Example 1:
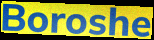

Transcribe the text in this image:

Boroshe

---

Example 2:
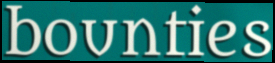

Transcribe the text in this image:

bounties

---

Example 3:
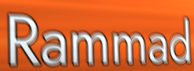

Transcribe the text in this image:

Rammad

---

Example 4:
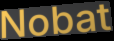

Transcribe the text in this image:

Nobat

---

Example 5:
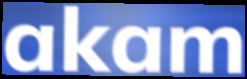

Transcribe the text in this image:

akam